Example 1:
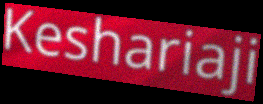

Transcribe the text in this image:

Keshariaji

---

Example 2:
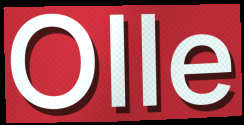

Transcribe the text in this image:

Olle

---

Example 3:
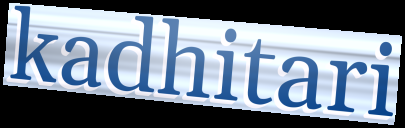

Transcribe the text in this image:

kadhitari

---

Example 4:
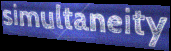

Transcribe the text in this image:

simultaneity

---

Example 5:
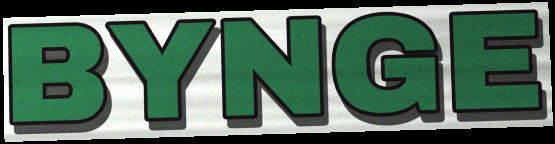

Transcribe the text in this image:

BYNGE